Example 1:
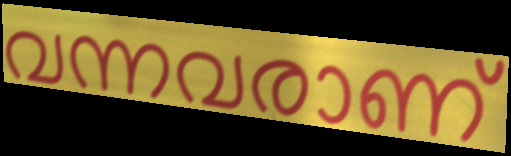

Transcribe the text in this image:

വന്നവരാണ്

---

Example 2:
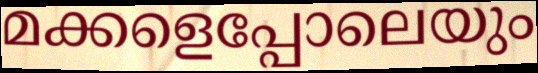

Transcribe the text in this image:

മക്കളെപ്പോലെയും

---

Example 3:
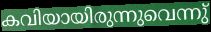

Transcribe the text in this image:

കവിയായിരുന്നുവെന്നു്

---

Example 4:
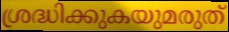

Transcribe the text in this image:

ശ്രദ്ധിക്കുകയുമരുത്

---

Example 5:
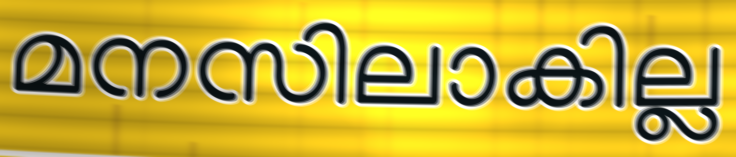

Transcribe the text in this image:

മനസിലാകില്ല